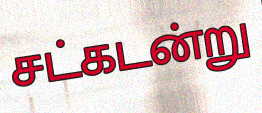
சட்கடன்று